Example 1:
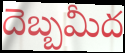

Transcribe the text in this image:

దెబ్బమీద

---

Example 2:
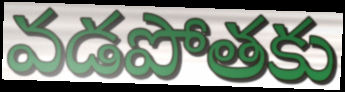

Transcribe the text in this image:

వడపోతకు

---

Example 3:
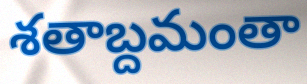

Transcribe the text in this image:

శతాబ్దమంతా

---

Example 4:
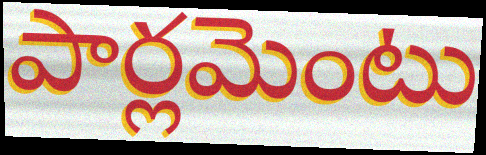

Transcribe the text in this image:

పార్లమెంటు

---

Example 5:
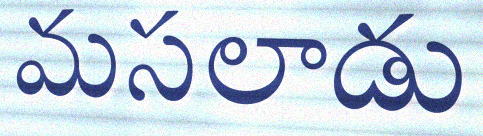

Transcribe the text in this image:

మసలాడు